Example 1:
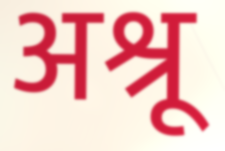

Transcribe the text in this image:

अश्रू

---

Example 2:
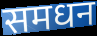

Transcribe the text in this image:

समधन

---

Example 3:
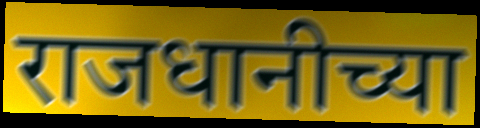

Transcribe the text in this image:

राजधानीच्या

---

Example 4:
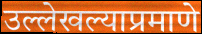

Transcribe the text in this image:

उल्लेखल्याप्रमाणे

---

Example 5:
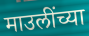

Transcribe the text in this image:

माउलींच्या